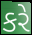
કરે